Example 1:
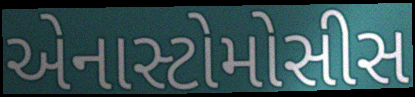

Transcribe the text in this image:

એનાસ્ટોમોસીસ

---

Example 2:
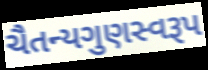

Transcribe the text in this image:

ચૈતન્યગુણસ્વરૂપ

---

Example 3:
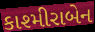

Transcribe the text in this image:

કાશ્મીરાબેન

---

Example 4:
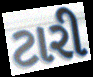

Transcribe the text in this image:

ટારી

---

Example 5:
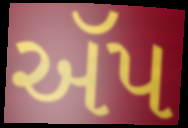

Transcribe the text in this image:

ઍપ